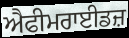
ਐਫੀਮਰਾਈਡਜ਼